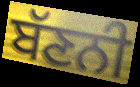
ਬੱਣਨੀ